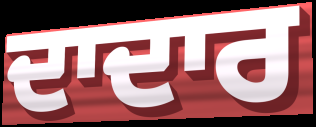
ਦਾਦਾਰ